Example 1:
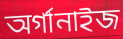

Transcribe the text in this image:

অর্গানাইজ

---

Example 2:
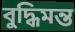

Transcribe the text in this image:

বুদ্ধিমন্ত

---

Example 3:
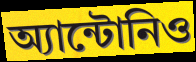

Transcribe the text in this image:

অ্যান্টোনিও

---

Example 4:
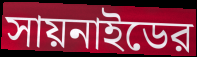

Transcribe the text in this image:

সায়নাইডের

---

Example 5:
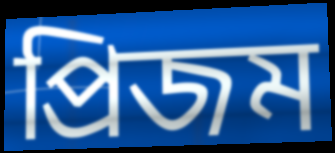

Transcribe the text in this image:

প্রিজম